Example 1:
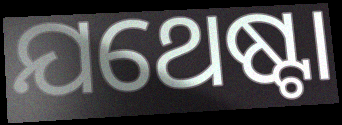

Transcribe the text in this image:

ଯଥେଷ୍ଟା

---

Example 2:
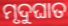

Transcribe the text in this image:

ମୃଦୁଘାତ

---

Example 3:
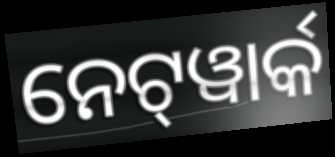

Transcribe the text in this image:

ନେଟ୍‌ୱାର୍କ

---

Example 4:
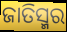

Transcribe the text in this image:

ଜାତିସ୍ମର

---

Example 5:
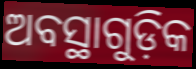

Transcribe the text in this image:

ଅବସ୍ଥାଗୁଡ଼ିକ